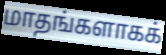
மாதங்களாகக்